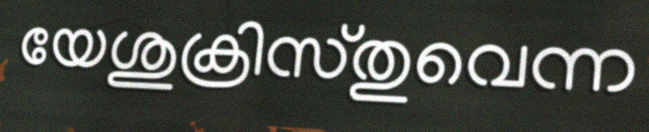
യേശുക്രിസ്തുവെന്ന